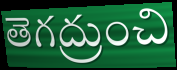
తెగద్రుంచి